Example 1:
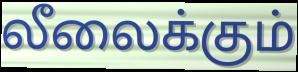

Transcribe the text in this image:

லீலைக்கும்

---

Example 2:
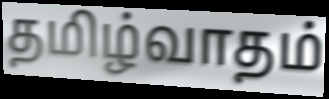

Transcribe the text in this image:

தமிழ்வாதம்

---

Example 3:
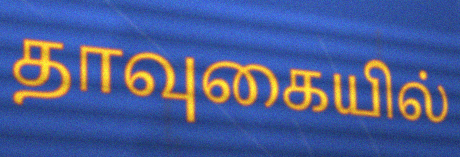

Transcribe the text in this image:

தாவுகையில்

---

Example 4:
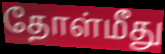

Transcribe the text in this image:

தோள்மீது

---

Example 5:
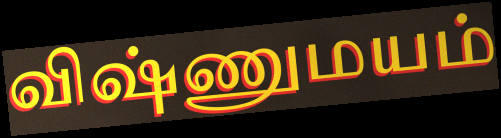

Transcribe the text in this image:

விஷ்ணுமயம்